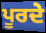
ਪੂਰਦੇ